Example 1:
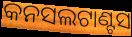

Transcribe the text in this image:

କନସଲଟାଣ୍ଟସ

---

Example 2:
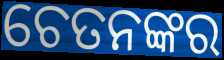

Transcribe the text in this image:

ଚେତନଙ୍କର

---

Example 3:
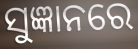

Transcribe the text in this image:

ସୁଜ୍ଞାନରେ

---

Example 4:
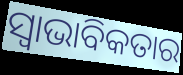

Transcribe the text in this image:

ସ୍ୱାଭାବିକତାର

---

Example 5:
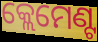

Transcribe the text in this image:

କ୍ଲେମେଣ୍ଟ